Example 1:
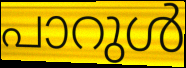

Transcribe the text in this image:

പാറുൾ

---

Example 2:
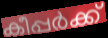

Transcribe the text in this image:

കീപ്പർക്ക്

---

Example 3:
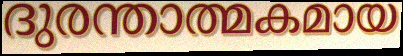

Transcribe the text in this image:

ദുരന്താത്മകമായ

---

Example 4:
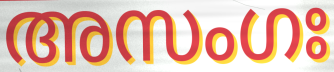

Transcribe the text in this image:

അസംഗഃ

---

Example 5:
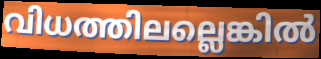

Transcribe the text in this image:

വിധത്തിലല്ലെങ്കിൽ